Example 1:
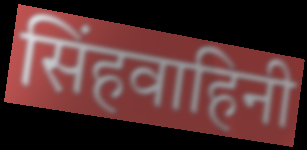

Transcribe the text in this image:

सिंहवाहिनी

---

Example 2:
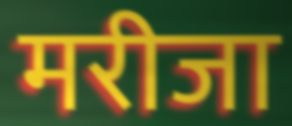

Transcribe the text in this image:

मरीजा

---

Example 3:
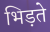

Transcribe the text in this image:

भिड़ते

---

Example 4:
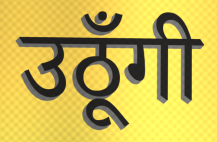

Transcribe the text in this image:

उठूँगी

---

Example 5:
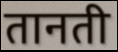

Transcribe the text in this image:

तानती